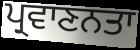
ਪ੍ਰਵਾਣਨਤਾ